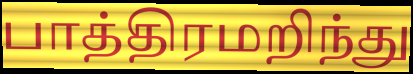
பாத்திரமறிந்து